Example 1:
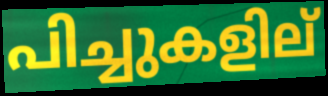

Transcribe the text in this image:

പിച്ചുകളില്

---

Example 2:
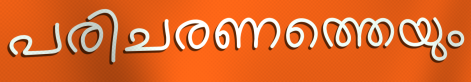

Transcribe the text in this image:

പരിചരണത്തെയും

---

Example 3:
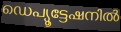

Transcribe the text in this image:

ഡെപ്യൂട്ടേഷനിൽ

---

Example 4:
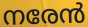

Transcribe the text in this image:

നരേൻ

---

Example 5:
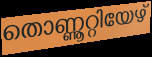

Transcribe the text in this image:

തൊണ്ണൂറ്റിയേഴ്